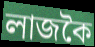
লাজকৈ